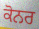
ਕੋਨਰ